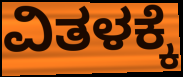
ವಿತಳಕ್ಕೆ